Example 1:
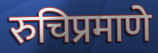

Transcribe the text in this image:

रुचिप्रमाणे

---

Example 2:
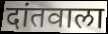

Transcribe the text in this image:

दांतवाला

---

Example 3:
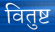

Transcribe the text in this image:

वितुष्ट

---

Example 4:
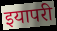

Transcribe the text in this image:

इयापरी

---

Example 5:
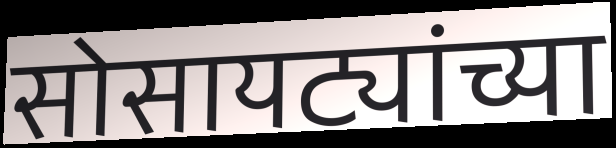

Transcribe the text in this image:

सोसायट्यांच्या